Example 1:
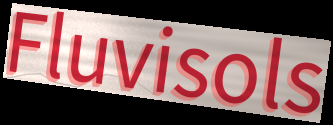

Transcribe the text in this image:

Fluvisols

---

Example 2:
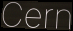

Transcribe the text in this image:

Cern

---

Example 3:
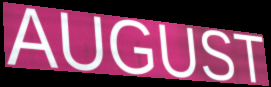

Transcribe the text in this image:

AUGUST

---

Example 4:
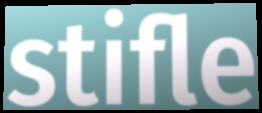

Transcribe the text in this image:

stifle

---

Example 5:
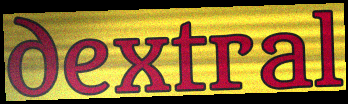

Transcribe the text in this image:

dextral